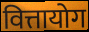
वित्तायोग